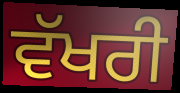
ਵੱਖਰੀ